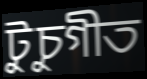
টুচুগীত